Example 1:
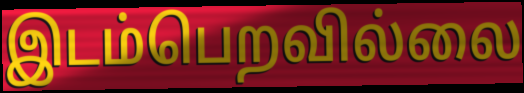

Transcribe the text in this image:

இடம்பெறவில்லை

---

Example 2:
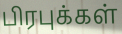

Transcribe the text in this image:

பிரபுக்கள்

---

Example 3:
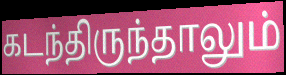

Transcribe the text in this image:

கடந்திருந்தாலும்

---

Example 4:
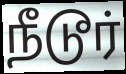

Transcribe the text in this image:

நீடூர்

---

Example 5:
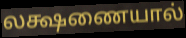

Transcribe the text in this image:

லக்ஷணையால்